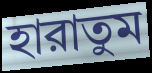
হারাতুম